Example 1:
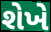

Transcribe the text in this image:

શેખે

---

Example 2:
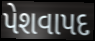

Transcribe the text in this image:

પેશવાપદ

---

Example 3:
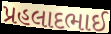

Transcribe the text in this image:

પ્રહલાદભાઈ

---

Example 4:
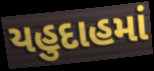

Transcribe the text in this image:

યહુદાહમાં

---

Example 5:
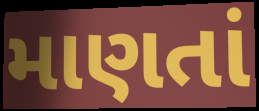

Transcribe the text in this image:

માણતાં